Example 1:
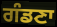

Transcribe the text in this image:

ਗੰਡਣਾ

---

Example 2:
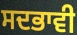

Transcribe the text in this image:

ਸਦਭਾਵੀ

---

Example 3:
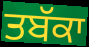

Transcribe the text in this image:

ਤਬੱਕਾ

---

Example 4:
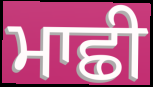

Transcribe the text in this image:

ਮਾਛੀ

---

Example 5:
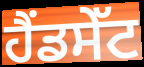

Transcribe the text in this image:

ਹੈਂਡਸੇੱਟ